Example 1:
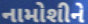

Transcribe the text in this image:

નામોશીને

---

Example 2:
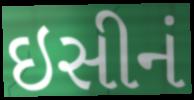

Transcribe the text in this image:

ઇસીનં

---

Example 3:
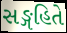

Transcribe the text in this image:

સઙ્ગહિતે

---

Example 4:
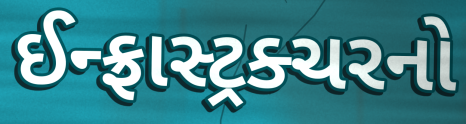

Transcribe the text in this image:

ઈન્ફ્રાસ્ટ્રક્ચરનો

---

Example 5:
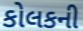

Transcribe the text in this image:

કોલકની